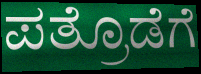
ಪತ್ರೊಡೆಗೆ